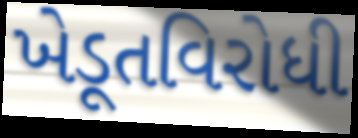
ખેડૂતવિરોધી